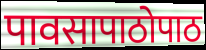
पावसापाठोपाठ